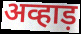
अव्हाड़